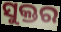
ସୁକ୍ତର